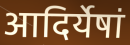
आदिर्येषां